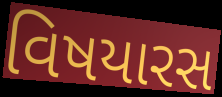
વિષયારસ